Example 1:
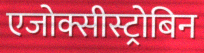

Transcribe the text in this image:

एजोक्सीस्ट्रोबिन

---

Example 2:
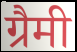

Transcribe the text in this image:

ग्रैमी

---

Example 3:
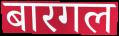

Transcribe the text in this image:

बारगल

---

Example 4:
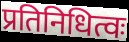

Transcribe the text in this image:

प्रतिनिधित्वः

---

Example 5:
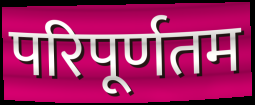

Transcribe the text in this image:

परिपूर्णतम